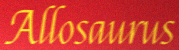
Allosaurus